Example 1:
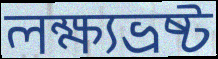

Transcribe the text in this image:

লক্ষ্যভ্রষ্ট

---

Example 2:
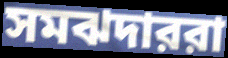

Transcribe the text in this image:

সমঝদাররা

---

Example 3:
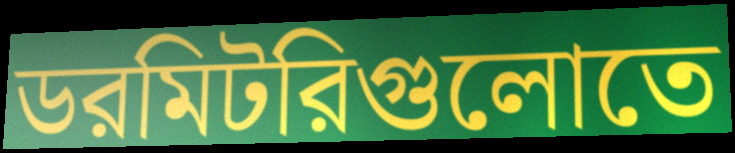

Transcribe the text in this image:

ডরমিটরিগুলোতে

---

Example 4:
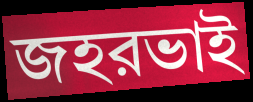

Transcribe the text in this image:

জহরভাই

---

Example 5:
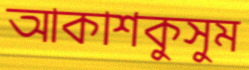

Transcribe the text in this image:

আকাশকুসুম